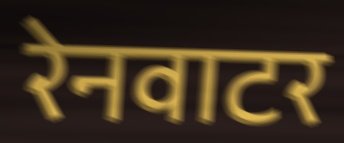
रेनवाटर